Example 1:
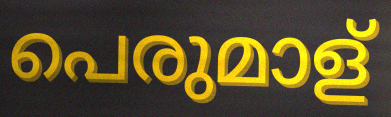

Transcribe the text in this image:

പെരുമാള്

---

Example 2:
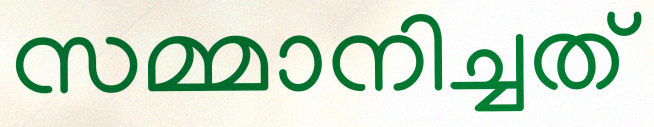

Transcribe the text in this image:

സമ്മാനിച്ചത്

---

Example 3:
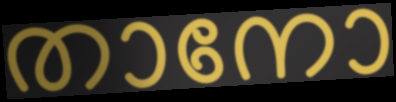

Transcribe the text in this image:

താനോ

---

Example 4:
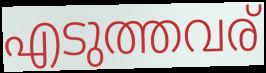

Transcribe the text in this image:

എടുത്തവര്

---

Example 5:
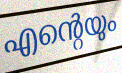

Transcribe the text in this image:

എന്റെയും